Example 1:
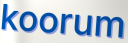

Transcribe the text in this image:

koorum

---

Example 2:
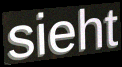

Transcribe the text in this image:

sieht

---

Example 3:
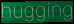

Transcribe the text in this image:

hugging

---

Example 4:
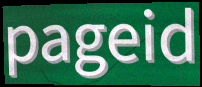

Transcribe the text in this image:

pageid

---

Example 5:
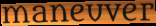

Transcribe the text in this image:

maneuver